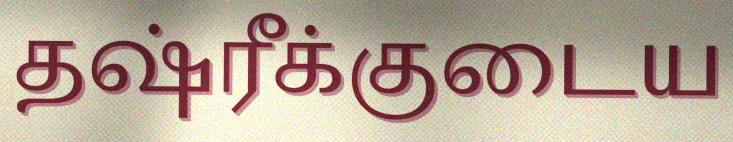
தஷ்ரீக்குடைய